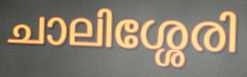
ചാലിശ്ശേരി